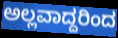
ಅಲ್ಲವಾದ್ದರಿಂದ